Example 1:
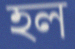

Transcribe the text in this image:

হল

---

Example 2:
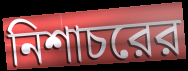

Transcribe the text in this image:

নিশাচরের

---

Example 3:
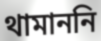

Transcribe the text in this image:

থামাননি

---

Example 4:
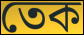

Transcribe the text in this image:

তেক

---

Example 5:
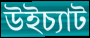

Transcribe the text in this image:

উইচ্যাট